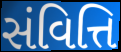
સંવિત્તિ